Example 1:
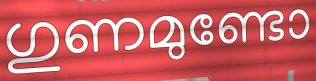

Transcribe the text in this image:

ഗുണമുണ്ടോ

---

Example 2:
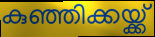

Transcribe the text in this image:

കുഞ്ഞിക്കയ്ക്ക്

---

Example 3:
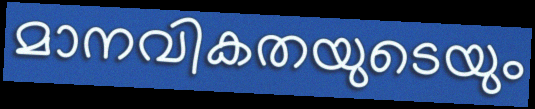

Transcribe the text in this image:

മാനവികതയുടെയും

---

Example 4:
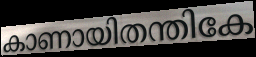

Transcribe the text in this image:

കാണായിതന്തികേ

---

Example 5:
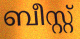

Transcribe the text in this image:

ബീസ്റ്റ്